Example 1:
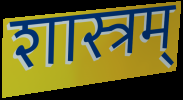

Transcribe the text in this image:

शास्त्रम्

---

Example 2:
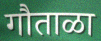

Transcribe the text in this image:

गौताळा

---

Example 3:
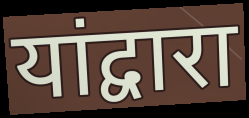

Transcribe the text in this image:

यांद्वारा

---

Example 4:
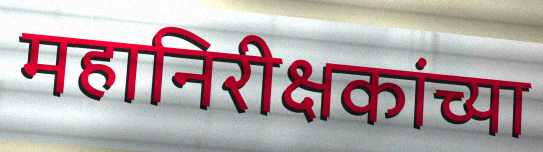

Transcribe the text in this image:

महानिरीक्षकांच्या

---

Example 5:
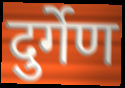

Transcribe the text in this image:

दुर्गेण